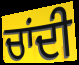
ਚਾਂਦੀ